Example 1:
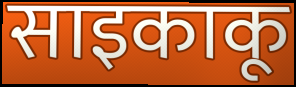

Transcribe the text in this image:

साइकाकू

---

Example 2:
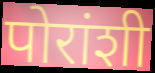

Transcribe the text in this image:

पोरांशी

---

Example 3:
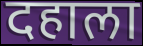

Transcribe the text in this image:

दहाला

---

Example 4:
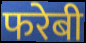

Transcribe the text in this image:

फरेबी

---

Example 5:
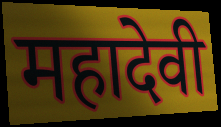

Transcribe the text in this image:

महादेवी